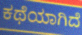
ಕಥೆಯಾಗಿದೆ